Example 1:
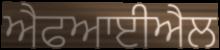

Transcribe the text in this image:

ਐਫਆਈਐਲ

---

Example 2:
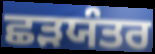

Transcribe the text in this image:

ਛੜਯੰਤਰ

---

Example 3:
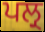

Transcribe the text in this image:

ਪਲ੍ਰ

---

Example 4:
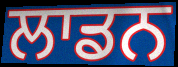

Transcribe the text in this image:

ਲਾਡਨ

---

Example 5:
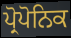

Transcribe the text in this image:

ਪ੍ਰੋਪੋਨਿਕ